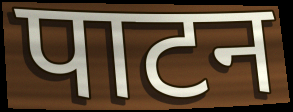
पाटन